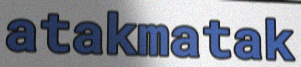
atakmatak